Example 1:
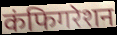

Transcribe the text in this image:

कंफिगरेशन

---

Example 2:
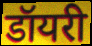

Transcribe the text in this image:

डॉयरी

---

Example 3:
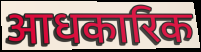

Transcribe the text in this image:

आधकारिक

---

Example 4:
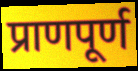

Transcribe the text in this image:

प्राणपूर्ण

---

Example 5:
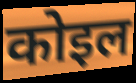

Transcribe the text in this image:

कोइल